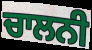
ਚਾਲਨੀ